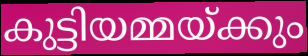
കുട്ടിയമ്മയ്ക്കും